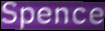
Spence